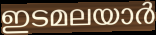
ഇടമലയാർ